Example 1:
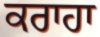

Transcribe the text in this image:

ਕਰਾਹਾ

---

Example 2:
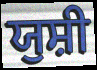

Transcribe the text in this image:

ਯੁਸ਼ੀ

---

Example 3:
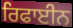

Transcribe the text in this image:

ਰਿਫਾਈਨ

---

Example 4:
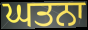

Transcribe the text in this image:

ਘਤਨਾ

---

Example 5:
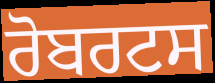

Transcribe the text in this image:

ਰੋਬਰਟਸ